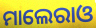
ମାଲେରାଓ